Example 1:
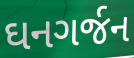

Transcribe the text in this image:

ઘનગર્જન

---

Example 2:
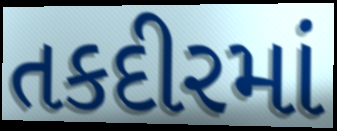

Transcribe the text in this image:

તકદીરમાં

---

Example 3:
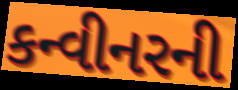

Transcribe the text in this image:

કન્વીનરની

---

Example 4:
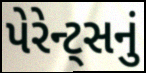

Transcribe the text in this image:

પેરેન્ટ્સનું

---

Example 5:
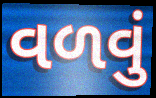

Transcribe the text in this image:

વળવું